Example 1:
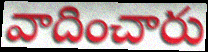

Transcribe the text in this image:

వాదించారు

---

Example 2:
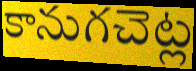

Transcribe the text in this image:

కానుగచెట్ల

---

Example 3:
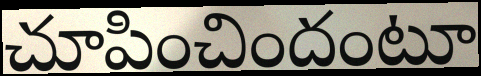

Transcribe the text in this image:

చూపించిందంటూ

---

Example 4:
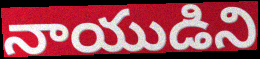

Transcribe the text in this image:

నాయుడిని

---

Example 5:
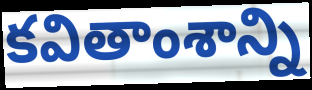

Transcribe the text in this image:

కవితాంశాన్ని